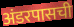
अंडरपासची